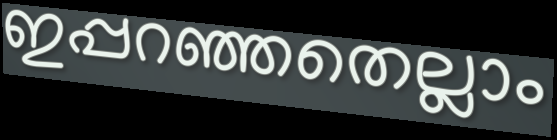
ഇപ്പറഞ്ഞതെല്ലാം